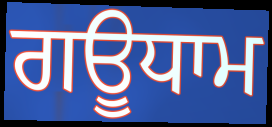
ਗਊਧਾਮ